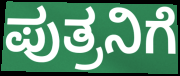
ಪುತ್ರನಿಗೆ